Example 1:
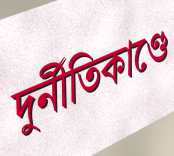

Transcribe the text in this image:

দুর্নীতিকাণ্ডে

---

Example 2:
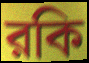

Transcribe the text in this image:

রকি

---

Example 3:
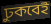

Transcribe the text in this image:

ঢুকবেই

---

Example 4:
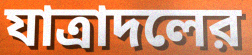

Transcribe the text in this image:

যাত্রাদলের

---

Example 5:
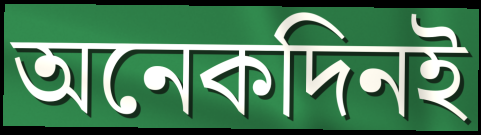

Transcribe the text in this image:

অনেকদিনই